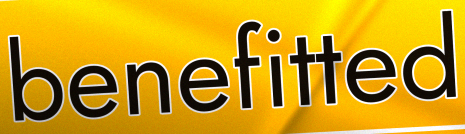
benefitted